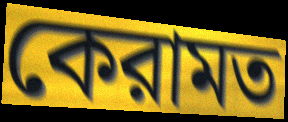
কেরামত